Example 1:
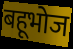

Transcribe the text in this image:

बहूभोज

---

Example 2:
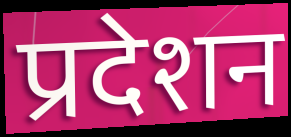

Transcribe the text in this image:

प्रदेशन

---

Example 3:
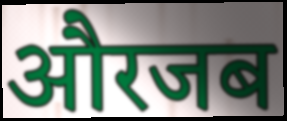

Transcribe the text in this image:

औरजब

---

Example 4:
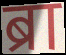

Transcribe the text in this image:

ब्रा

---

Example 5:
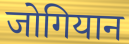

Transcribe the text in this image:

जोगियान